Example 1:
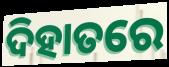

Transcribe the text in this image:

ଦିହାତରେ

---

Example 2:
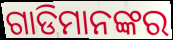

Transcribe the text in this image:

ଗାଡିମାନଙ୍କର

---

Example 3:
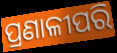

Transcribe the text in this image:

ପ୍ରଣାଳୀପରି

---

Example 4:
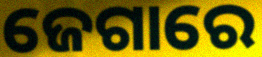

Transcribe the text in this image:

ଜେଗାରେ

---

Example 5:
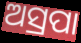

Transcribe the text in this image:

ଅସ୍ରପା